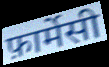
फ़ार्मेसी